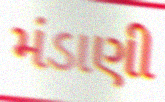
મંડાણી